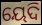
ୟେଦି